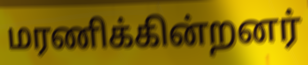
மரணிக்கின்றனர்